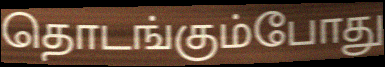
தொடங்கும்போது